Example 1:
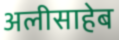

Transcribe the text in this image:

अलीसाहेब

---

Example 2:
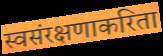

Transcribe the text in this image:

स्वसंरक्षणाकरिता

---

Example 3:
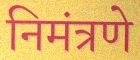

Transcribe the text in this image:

निमंत्रणे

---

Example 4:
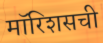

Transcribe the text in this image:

मॉरिशसची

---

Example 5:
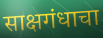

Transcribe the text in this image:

साक्षगंधाचा